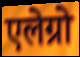
एलेग्रो